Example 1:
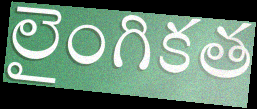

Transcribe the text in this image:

లైంగికత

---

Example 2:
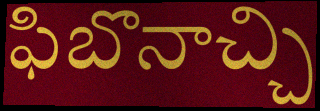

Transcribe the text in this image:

ఫిబొనాచ్చి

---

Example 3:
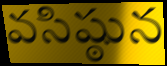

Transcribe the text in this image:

వసిష్ఠున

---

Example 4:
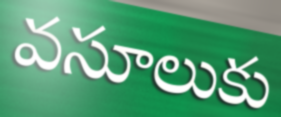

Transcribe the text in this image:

వసూలుకు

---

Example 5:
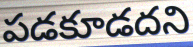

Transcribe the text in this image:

పడకూడదని